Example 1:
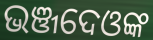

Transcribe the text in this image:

ଭଞ୍ଜଦେଓଙ୍କ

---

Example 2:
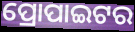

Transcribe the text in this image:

ପ୍ରୋପାଇଟର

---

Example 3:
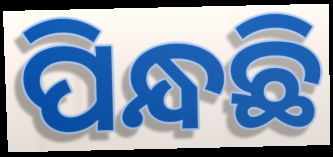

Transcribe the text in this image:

ପିନ୍ଧଛି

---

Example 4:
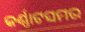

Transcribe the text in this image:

କର୍ଣ୍ଣାଟସମର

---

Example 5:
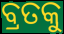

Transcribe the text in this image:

ବ୍ରତକୁ